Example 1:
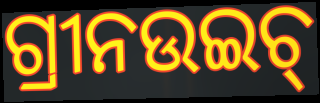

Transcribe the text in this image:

ଗ୍ରୀନଉଇଚ୍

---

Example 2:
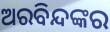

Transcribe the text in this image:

ଅରବିନ୍ଦଙ୍କର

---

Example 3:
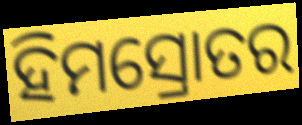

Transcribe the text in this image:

ହିମସ୍ରୋତର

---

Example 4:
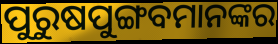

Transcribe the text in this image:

ପୁରୁଷପୁଙ୍ଗବମାନଙ୍କର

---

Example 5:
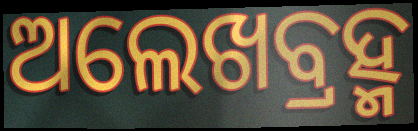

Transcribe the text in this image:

ଅଲେଖବ୍ରହ୍ମ